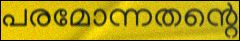
പരമോന്നതന്റെ